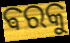
ଵରକୁ